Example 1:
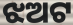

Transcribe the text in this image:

ଝଅଟ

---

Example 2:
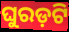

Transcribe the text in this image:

ଘୁରଡ଼ଟି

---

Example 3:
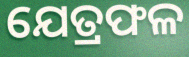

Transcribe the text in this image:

ଯେତ୍ରଫଳ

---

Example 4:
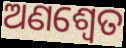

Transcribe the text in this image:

ଅଣଶ୍ୱେତ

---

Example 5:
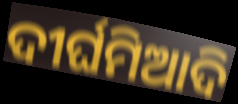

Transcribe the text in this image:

ଦୀର୍ଘମିଆଦି